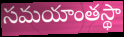
సమయాంతస్థా